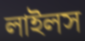
লাইলস